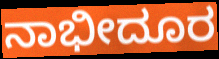
ನಾಭೀದೂರ